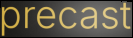
precast